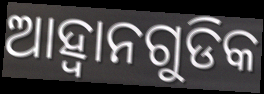
ଆହ୍ୱାନଗୁଡିକ